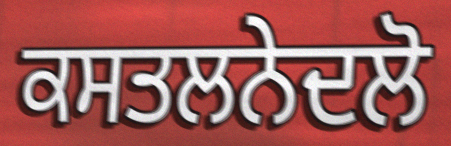
ਕਸਤਲਨੇਦਲੋ